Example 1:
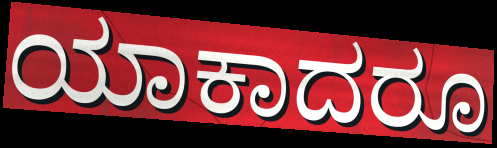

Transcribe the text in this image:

ಯಾಕಾದರೂ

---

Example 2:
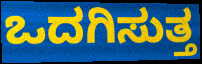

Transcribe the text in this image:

ಒದಗಿಸುತ್ತ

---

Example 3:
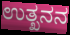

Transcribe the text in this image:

ಉತ್ಖನನ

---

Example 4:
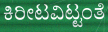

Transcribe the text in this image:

ಕಿರೀಟವಿಟ್ಟಂತೆ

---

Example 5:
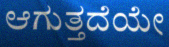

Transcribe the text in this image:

ಆಗುತ್ತದೆಯೇ